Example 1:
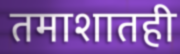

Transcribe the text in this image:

तमाशातही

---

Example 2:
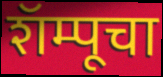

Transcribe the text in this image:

शॅम्पूचा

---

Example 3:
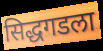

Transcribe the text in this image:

सिद्धगडला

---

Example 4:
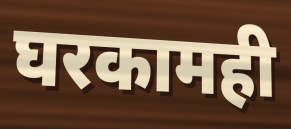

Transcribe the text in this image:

घरकामही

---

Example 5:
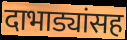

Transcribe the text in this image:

दाभाड्यांसह